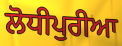
ਲੋਧੀਪੁਰੀਆ